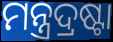
ମନ୍ତ୍ରଦ୍ରଷ୍ଟା